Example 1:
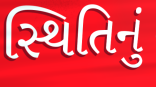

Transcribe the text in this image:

સ્થિતિનું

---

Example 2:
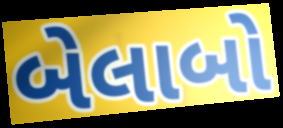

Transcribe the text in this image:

બેલાબો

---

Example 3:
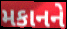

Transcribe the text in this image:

મકાનને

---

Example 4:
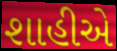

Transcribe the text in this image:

શાહીએ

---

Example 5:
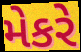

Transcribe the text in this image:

મેકરે